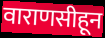
वाराणसीहून